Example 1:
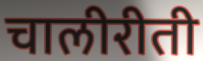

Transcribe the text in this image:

चालीरीती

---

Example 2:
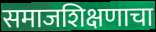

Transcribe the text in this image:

समाजशिक्षणाचा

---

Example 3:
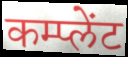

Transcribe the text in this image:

कम्प्लेंट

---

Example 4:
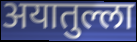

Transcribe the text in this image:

अयातुल्ला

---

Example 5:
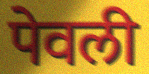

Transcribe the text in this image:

पेवली